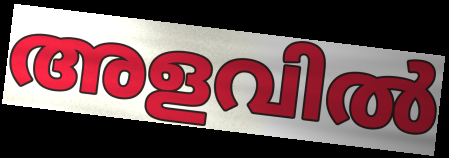
അളവിൽ